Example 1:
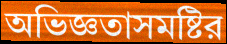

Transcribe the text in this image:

অভিজ্ঞতাসমষ্টির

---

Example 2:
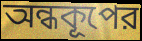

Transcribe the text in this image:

অন্ধকূপের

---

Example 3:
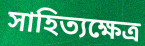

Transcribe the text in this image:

সাহিত্যক্ষেত্র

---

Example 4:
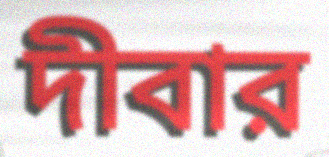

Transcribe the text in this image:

দীবার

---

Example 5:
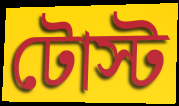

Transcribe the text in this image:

টোস্ট